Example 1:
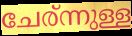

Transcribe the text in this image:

ചേര്ന്നുള്ള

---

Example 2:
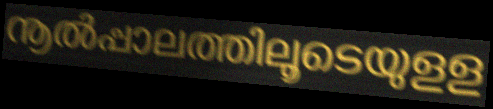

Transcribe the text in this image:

നൂൽപ്പാലത്തിലൂടെയുളള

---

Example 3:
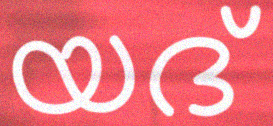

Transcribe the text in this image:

യദ്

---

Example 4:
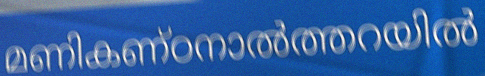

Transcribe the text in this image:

മണികണ്ഠനാൽത്തറയിൽ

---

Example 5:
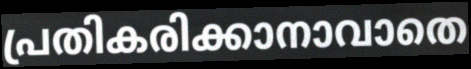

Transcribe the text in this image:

പ്രതികരിക്കാനാവാതെ